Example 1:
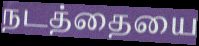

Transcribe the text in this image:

நடத்தையை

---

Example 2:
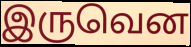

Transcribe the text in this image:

இருவென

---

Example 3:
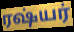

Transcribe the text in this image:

ரஷ்யர்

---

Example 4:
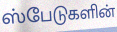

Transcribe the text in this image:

ஸ்பேடுகளின்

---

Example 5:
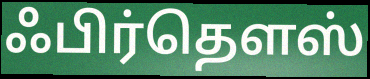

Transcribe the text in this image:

ஃபிர்தௌஸ்